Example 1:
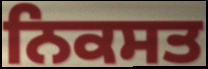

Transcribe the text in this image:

ਨਿਕਸਤ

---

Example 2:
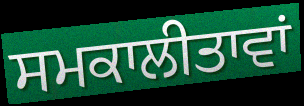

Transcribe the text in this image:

ਸਮਕਾਲੀਤਾਵਾਂ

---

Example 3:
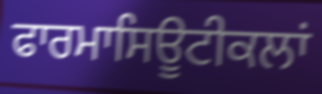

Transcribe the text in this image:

ਫਾਰਮਾਸਿਊਟੀਕਲਾਂ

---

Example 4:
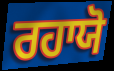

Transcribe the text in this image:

ਰਹਾਯੋ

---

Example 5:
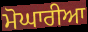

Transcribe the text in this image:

ਮੋਘਾਰੀਆ